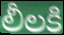
లీలకి